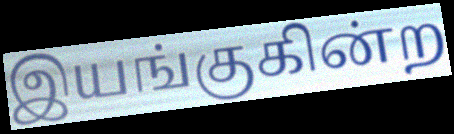
இயங்குகின்ற